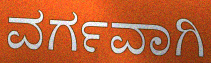
ವರ್ಗವಾಗಿ